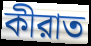
কীরাত